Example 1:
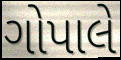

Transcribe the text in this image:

ગોપાલે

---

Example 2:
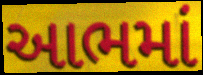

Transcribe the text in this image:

આભમાં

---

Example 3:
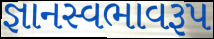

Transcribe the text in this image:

જ્ઞાનસ્વભાવરૂપ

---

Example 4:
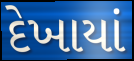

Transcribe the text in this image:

દેખાયાં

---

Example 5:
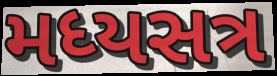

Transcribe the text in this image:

મધ્યસત્ર